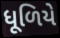
ધૂળિયે